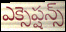
ఎక్సెప్షన్స్